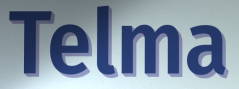
Telma